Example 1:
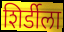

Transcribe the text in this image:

शिर्डीला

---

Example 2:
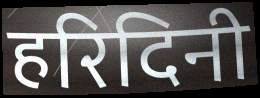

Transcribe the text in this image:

हरिदिनी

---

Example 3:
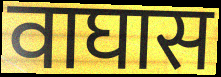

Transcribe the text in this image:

वाघास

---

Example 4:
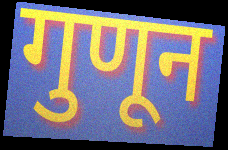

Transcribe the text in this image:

गुणून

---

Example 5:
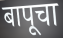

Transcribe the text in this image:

बापूचा